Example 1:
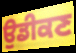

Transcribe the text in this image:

ਉਡੀਕਣ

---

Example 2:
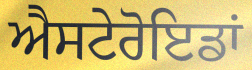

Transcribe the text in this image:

ਐਸਟੇਰੋਇਡਾਂ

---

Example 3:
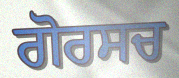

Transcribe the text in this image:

ਗੋਰਸਚ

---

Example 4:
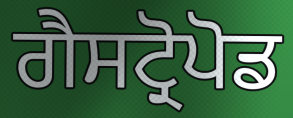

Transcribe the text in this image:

ਗੈਸਟ੍ਰੋਪੋਡ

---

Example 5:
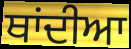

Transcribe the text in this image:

ਥਾਂਦੀਆ